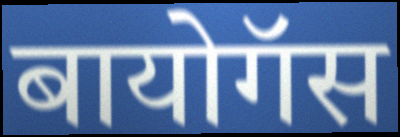
बायोगॅस